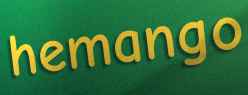
hemango